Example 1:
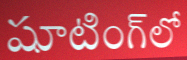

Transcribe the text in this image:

షూటింగ్‌లో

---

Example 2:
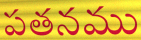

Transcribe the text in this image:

పతనము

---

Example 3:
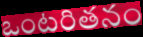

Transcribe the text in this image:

ఒంటరితనం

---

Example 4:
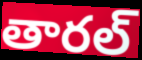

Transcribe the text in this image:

తారల్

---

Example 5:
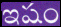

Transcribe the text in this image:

ఇషం